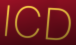
ICD